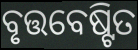
ବୃତ୍ତବେଷ୍ଟିତ